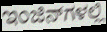
ಇಂಜಿನ್‌ಗಳಲ್ಲಿ